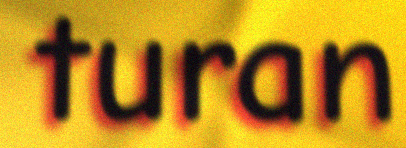
turan